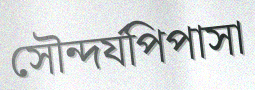
সৌন্দর্যপিপাসা